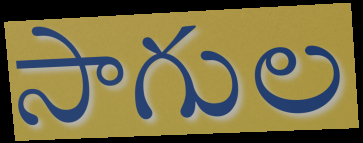
సాగుల